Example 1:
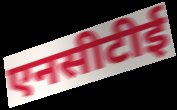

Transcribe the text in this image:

एनसीटीई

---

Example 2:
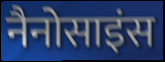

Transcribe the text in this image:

नैनोसाइंस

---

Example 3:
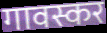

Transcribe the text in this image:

गावस्‍कर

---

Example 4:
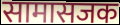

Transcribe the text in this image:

सामासजक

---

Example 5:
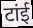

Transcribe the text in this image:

टांई